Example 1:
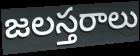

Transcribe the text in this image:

జలస్తరాలు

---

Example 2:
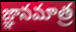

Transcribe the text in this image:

జ్ఞానమాత్ర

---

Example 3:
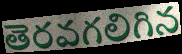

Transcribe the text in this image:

తెరవగలిగిన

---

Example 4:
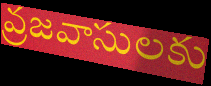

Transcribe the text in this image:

వ్రజవాసులకు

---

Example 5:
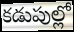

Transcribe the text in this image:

కడుపుల్లో